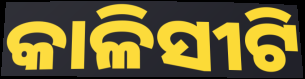
କାଳିସୀଟି